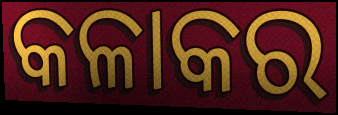
କଳାକର